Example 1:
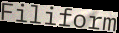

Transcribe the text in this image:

Filiform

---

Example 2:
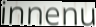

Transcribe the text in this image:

innenu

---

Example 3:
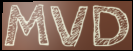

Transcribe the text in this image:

MVD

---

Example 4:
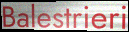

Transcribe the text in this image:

Balestrieri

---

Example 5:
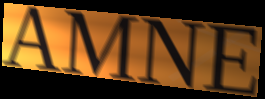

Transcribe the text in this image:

AMNE